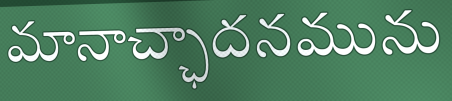
మానాచ్ఛాదనమును